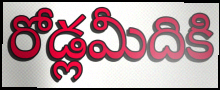
రోడ్లమీదికి